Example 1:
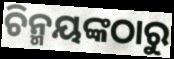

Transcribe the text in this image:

ଚିନ୍ମୟଙ୍କଠାରୁ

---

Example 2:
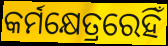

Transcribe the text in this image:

କର୍ମକ୍ଷେତ୍ରରେହିଁ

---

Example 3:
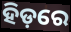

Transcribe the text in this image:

ହିଡ଼ରେ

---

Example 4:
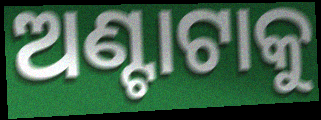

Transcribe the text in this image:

ଅଣ୍ଟାଟାକୁ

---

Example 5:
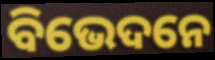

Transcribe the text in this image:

ବିଭେଦନେ